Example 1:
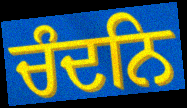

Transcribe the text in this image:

ਚੰਦਨਿ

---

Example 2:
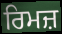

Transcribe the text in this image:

ਰਿਮਜ਼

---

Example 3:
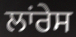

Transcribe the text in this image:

ਲਾਂਰੇਸ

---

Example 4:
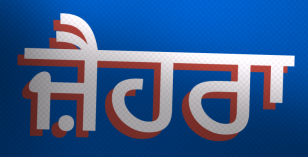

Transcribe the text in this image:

ਜ਼ੈਹਰਾ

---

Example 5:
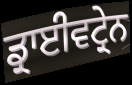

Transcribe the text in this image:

ਡ੍ਰਾਈਵਟ੍ਰੇਨ